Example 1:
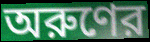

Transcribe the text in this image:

অরুণের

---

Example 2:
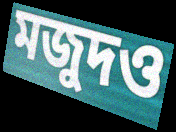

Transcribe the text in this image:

মজুদও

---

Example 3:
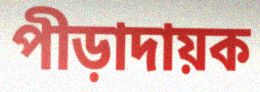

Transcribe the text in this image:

পীড়াদায়ক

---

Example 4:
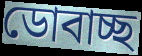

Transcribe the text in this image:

ডোবাচ্ছ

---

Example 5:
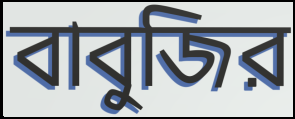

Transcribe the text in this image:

বাবুজির